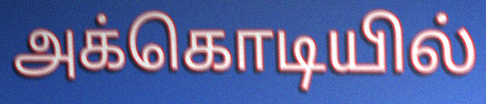
அக்கொடியில்